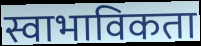
स्वाभाविकता